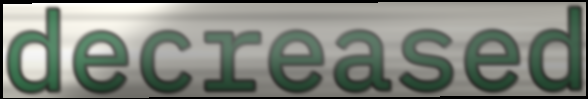
decreased